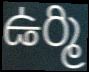
ఉర్మి